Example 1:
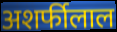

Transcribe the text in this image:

अशर्फीलाल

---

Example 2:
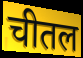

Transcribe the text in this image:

चीतल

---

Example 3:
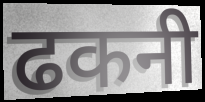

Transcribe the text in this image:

ढकनी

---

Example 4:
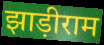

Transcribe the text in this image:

झाड़ीराम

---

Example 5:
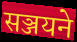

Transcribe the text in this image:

सञ्जयने